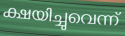
ക്ഷയിച്ചുവെന്ന്